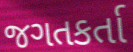
જગતકર્તા